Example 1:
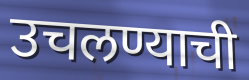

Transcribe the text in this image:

उचलण्याची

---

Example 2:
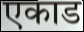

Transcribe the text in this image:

एकाड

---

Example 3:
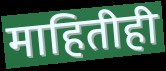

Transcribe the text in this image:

माहितीही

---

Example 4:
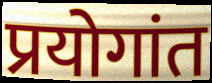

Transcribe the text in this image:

प्रयोगांत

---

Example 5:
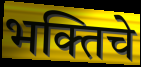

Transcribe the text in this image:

भक्तिचे